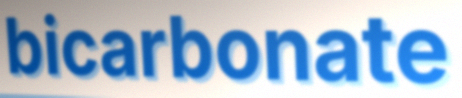
bicarbonate